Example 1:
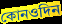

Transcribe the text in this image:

কোনওদিন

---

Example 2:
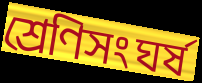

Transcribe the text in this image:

শ্রেণিসংঘর্ষ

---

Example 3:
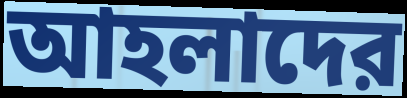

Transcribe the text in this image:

আহলাদের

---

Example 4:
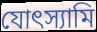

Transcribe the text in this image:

যোৎস্যামি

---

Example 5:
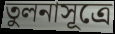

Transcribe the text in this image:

তুলনাসূত্রে